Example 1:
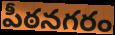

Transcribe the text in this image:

పీఠనగరం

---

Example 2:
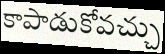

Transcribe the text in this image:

కాపాడుకోవచ్చు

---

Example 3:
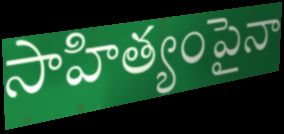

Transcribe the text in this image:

సాహిత్యంపైనా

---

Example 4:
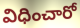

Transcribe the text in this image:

విధించారో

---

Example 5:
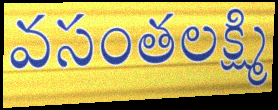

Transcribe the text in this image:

వసంతలక్ష్మి